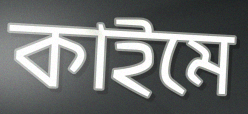
কাইমে